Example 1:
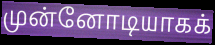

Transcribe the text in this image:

முன்னோடியாகக்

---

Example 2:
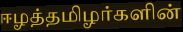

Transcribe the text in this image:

ஈழத்தமிழர்களின்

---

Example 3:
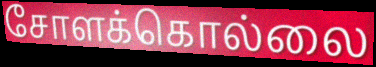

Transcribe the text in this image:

சோளக்கொல்லை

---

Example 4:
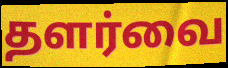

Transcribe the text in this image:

தளர்வை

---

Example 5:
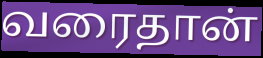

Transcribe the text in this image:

வரைதான்